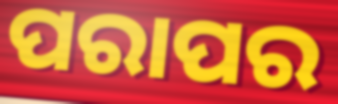
ପରାପର